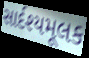
સાર્દશ્યમૂલક